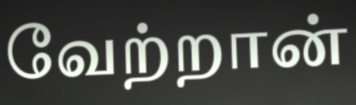
வேற்றான்